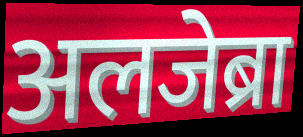
अलजेब्रा